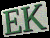
EK